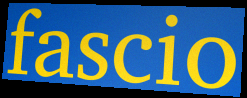
fascio